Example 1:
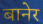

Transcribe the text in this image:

बानेर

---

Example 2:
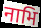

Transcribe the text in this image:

नाभि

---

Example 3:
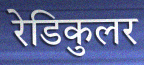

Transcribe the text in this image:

रेडिकुलर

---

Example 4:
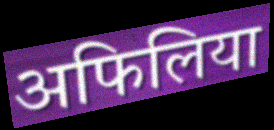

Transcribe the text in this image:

अफिलिया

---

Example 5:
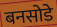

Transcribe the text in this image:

बनसोडे